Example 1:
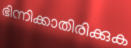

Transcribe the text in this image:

ഭിന്നിക്കാതിരിക്കുക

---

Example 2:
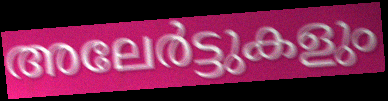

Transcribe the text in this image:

അലേർട്ടുകളും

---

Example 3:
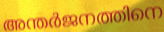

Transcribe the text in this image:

അന്തർജനത്തിനെ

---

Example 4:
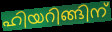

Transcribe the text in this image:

ഹിയറിങ്ങിന്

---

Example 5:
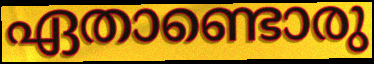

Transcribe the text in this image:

ഏതാണ്ടൊരു